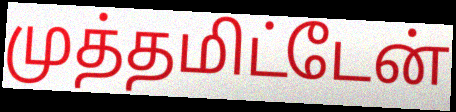
முத்தமிட்டேன்